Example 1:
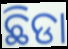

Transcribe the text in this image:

ଛିଡା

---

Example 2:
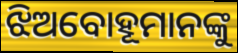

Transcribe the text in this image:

ଝିଅବୋହୂମାନଙ୍କୁ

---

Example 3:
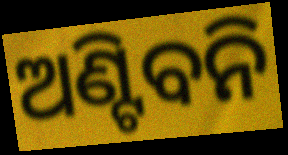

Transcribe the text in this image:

ଅଣ୍ଟିବନି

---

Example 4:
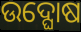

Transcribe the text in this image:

ଉଦ୍ଘୋଷ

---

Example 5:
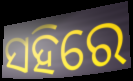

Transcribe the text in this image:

ସହିରେ